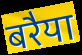
बरैया